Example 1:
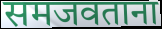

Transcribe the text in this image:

समजवताना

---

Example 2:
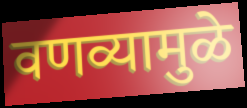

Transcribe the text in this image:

वणव्यामुळे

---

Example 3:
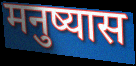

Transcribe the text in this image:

मनुष्यास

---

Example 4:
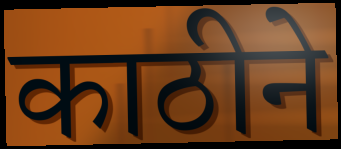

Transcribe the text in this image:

काठीने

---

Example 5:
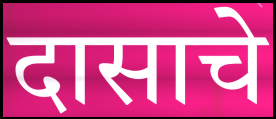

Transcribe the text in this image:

दासाचे